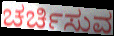
ಚರ್ಚಿಸುವ